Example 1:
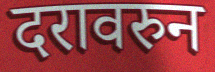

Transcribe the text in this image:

दरावरुन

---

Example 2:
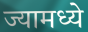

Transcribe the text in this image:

ज्यामध्ये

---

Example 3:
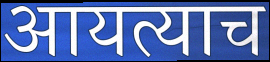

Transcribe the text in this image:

आयत्याच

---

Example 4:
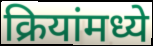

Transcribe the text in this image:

क्रियांमध्ये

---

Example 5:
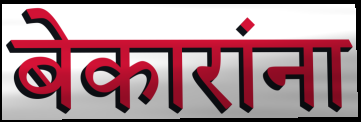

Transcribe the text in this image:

बेकारांना